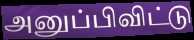
அனுப்பிவிட்டு